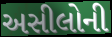
અસીલોની